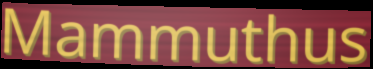
Mammuthus